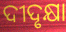
ଦୀଦୃକ୍ଷା